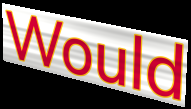
Would